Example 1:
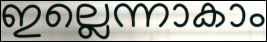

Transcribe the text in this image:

ഇല്ലെന്നാകാം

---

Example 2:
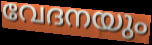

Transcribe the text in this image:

വേദനയും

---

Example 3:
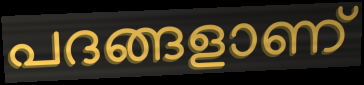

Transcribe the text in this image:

പദങ്ങളാണ്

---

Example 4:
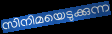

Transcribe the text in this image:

സിനിമയെടുക്കുന്ന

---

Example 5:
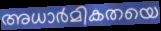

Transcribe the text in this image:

അധാർമികതയെ